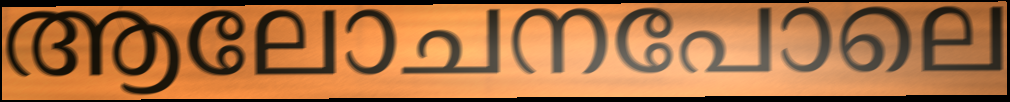
ആലോചനപോലെ